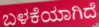
ಬಳಕೆಯಾಗಿದೆ